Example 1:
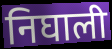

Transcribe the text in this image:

निघाली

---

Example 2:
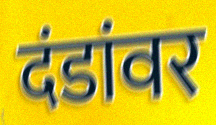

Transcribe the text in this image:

दंडांवर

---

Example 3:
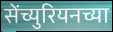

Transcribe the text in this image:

सेंच्युरियनच्या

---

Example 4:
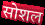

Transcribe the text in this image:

सोशल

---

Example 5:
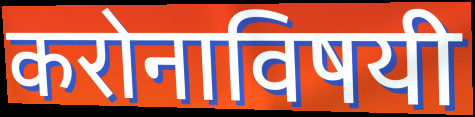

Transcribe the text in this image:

करोनाविषयी